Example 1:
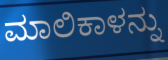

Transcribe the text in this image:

ಮಾಲಿಕಾಳನ್ನು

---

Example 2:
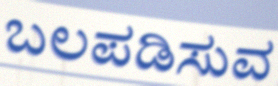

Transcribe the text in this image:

ಬಲಪಡಿಸುವ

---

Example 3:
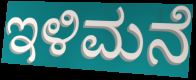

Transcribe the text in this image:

ಇಳಿಮನೆ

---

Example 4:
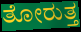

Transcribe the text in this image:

ತೋರುತ್ತ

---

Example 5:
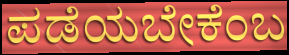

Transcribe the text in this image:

ಪಡೆಯಬೇಕೆಂಬ